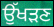
ਉੱਖੜਣ